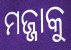
ମଜ୍ଜାକୁ